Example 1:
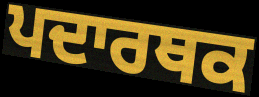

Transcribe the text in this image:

ਪਦਾਰਥਕ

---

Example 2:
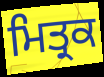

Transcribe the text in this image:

ਮਿਤ੍ਰਕ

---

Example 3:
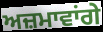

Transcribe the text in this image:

ਅਜ਼ਮਾਵਾਂਗੇ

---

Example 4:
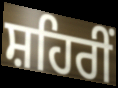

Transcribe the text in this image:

ਸ਼ਹਿਰੀਂ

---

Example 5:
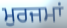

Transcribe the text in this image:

ਮੁਰਜਮਾਂ